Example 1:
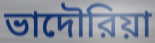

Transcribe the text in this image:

ভাদৌরিয়া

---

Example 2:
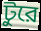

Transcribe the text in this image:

টুরে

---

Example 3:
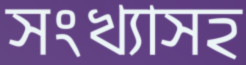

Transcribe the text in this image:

সংখ্যাসহ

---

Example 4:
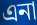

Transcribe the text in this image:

এনা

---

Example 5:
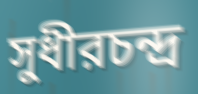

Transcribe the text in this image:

সুধীরচন্দ্র